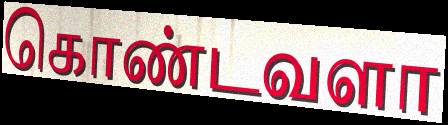
கொண்டவளா